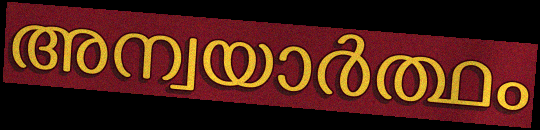
അന്വയാർത്ഥം